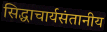
सिद्धाचार्यसंतानीय